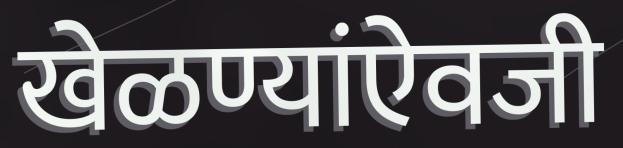
खेळण्यांऐवजी